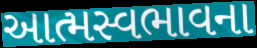
આત્મસ્વભાવના